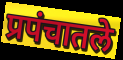
प्रपंचातले